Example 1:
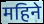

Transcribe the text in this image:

महिने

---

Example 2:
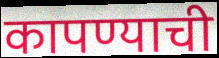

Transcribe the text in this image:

कापण्याची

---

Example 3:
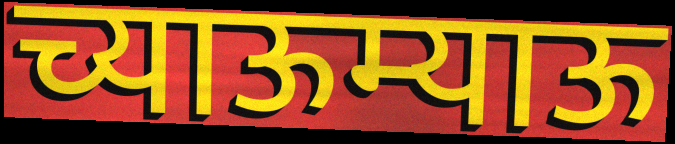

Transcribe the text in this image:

च्याऊम्याऊ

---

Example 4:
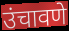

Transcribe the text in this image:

उंचावणे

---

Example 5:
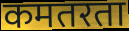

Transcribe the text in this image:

कमतरता